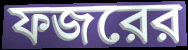
ফজরের